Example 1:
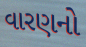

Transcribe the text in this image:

વારણનો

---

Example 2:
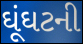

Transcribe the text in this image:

ઘૂંઘટની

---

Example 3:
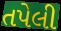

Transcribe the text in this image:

તપેલી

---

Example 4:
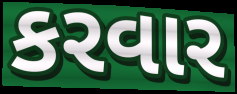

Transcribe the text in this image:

કરવાર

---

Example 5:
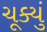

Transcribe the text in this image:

ચૂક્યું